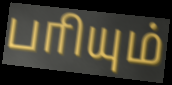
பரியும்